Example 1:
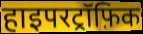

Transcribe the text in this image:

हाइपरट्रॉफ़िक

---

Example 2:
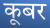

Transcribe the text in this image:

कूबर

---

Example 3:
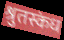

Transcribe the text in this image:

श्रुतस्कंध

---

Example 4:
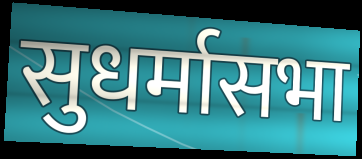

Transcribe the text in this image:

सुधर्मासभा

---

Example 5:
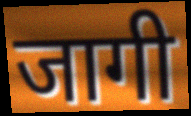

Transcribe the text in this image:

जागी